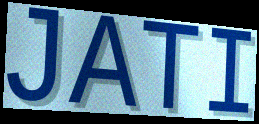
JATI